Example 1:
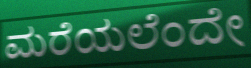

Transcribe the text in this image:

ಮರೆಯಲೆಂದೇ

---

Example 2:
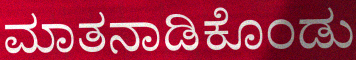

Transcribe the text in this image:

ಮಾತನಾಡಿಕೊಂಡು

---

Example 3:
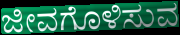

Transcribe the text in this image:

ಜೀವಗೊಳಿಸುವ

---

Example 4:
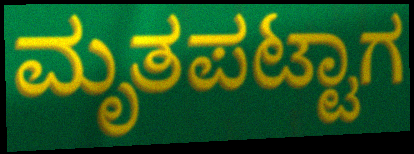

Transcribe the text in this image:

ಮೃತಪಟ್ಟಾಗ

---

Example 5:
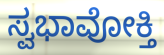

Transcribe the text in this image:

ಸ್ವಭಾವೋಕ್ತಿ